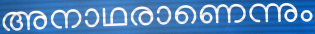
അനാഥരാണെന്നും